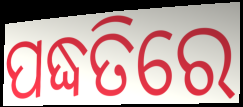
ପଦ୍ଧତିରେ